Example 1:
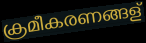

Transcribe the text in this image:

ക്രമീകരണങ്ങള്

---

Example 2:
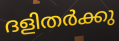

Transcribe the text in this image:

ദളിതർക്കു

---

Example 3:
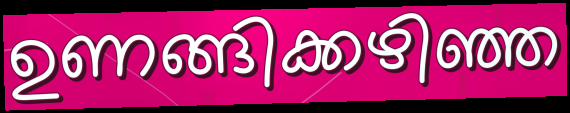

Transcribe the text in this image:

ഉണങ്ങിക്കഴിഞ്ഞ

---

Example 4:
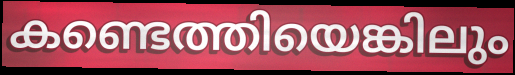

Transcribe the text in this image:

കണ്ടെത്തിയെങ്കിലും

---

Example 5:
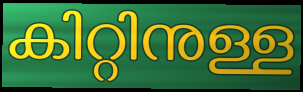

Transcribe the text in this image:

കിറ്റിനുള്ള